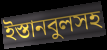
ইস্তানবুলসহ